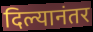
दिल्यानंतर